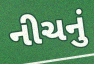
નીચનું